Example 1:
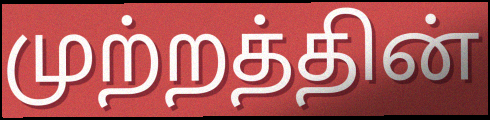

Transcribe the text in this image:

முற்றத்தின்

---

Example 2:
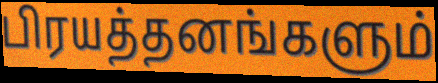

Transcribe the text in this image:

பிரயத்தனங்களும்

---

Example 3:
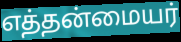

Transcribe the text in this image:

எத்தன்மையர்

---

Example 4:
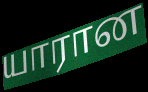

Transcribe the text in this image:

யாரான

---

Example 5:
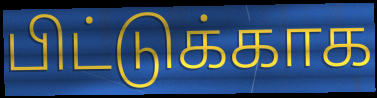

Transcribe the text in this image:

பிட்டுக்காக